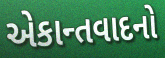
એકાન્તવાદનો